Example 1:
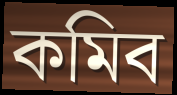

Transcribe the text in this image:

কমিব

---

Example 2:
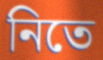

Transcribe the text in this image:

নিতে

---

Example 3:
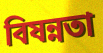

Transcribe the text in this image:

বিষন্নতা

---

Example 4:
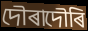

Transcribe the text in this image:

দৌৰাদৌৰি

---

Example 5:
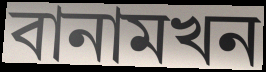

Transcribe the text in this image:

বানামখন